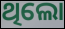
ଥିଲୋ